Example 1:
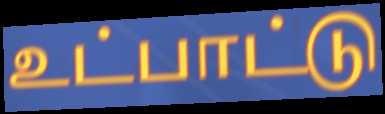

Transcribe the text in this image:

உட்பாட்டு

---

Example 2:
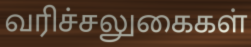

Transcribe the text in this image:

வரிச்சலுகைகள்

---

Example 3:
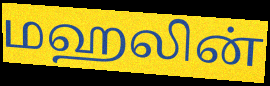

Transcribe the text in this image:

மஹலின்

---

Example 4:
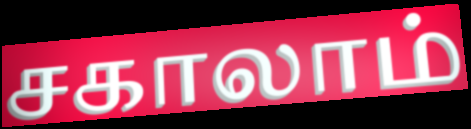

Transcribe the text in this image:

சகாலாம்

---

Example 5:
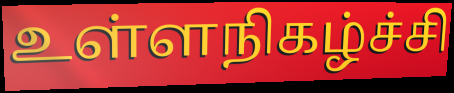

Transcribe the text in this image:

உள்ளநிகழ்ச்சி